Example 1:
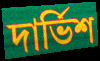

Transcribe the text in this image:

দার্ভিশ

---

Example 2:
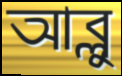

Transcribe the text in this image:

আব্লু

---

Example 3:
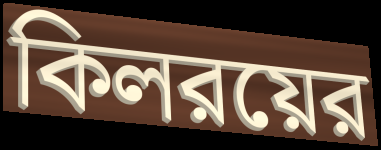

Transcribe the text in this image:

কিলরয়ের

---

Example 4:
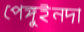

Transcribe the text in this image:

পেঙ্গুইনদা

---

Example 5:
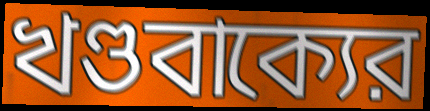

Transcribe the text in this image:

খণ্ডবাক্যের